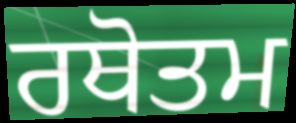
ਰਥੋਤਮ